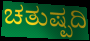
ಚತುಷ್ಪದಿ